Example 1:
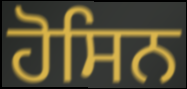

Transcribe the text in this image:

ਹੋਸਿਨ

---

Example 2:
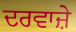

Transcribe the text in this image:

ਦਰਵਾਜ਼ੇ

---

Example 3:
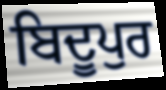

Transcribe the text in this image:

ਬਿਦੂਪੁਰ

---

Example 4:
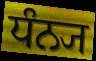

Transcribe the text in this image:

ਧੰਨ੍ਯ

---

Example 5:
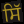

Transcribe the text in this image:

ਸਿੱ